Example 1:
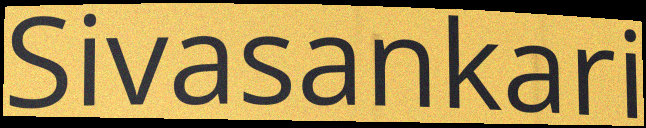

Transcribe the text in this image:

Sivasankari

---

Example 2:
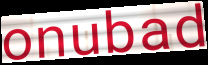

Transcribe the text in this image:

onubad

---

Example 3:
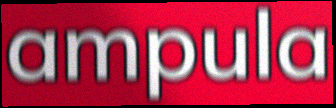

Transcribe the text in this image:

ampula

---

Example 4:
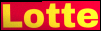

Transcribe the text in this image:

Lotte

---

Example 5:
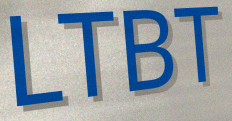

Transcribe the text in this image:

LTBT